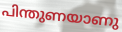
പിന്തുണയാണു